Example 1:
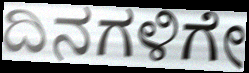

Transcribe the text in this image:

ದಿನಗಳಿಗೇ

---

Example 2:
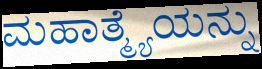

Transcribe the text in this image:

ಮಹಾತ್ಮ್ಯೆಯನ್ನು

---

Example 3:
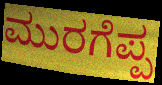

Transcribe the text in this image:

ಮುರಗೆಪ್ಪ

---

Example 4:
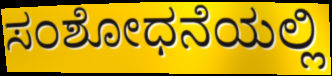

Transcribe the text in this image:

ಸಂಶೋಧನೆಯಲ್ಲಿ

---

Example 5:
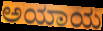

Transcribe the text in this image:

ಅಯಾಯ